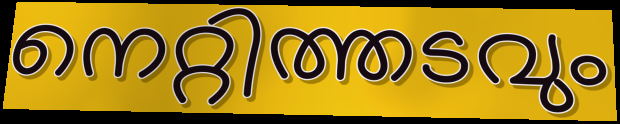
നെറ്റിത്തടവും